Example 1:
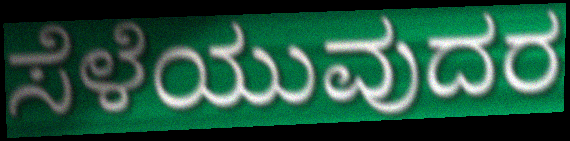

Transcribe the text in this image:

ಸೆಳೆಯುವುದರ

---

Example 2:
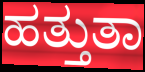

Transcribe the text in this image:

ಹತ್ತುತಾ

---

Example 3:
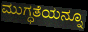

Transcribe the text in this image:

ಮುಗ್ಧತೆಯನ್ನೂ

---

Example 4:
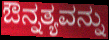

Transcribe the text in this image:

ಔನ್ನತ್ಯವನ್ನು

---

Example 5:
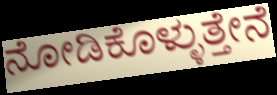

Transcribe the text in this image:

ನೋಡಿಕೊಳ್ಳುತ್ತೇನೆ